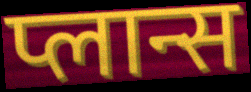
प्‍लान्‍स